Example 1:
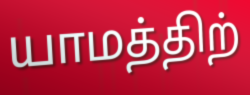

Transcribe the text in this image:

யாமத்திற்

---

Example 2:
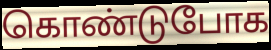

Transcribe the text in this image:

கொண்டுபோக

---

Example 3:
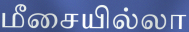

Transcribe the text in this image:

மீசையில்லா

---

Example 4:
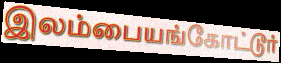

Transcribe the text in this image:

இலம்பையங்கோட்டூர்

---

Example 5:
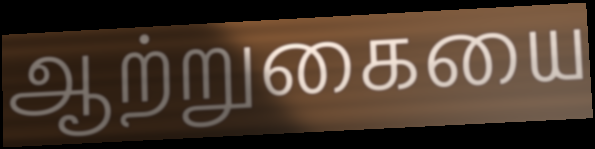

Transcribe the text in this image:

ஆற்றுகையை